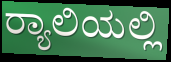
ರ‍್ಯಾಲಿಯಲ್ಲಿ